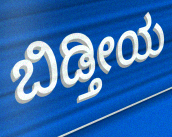
ಬಿಡ್ತೀಯ